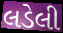
લડેલી